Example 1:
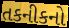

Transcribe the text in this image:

તકનીકનો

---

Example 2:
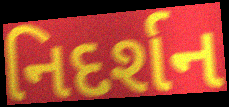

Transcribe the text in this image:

નિદર્શન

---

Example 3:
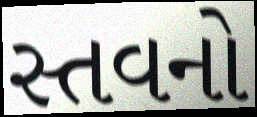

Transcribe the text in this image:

સ્તવનો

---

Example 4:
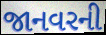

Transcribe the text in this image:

જાનવરની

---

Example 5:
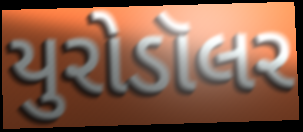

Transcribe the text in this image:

યુરોડૉલર